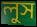
লুস